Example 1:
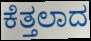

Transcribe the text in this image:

ಕೆತ್ತಲಾದ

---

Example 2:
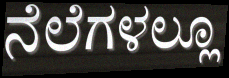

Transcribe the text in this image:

ನೆಲೆಗಳಲ್ಲೂ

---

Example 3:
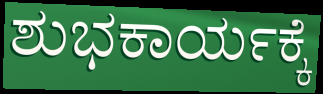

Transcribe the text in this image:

ಶುಭಕಾರ್ಯಕ್ಕೆ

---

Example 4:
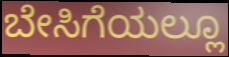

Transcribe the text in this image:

ಬೇಸಿಗೆಯಲ್ಲೂ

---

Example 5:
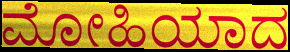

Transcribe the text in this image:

ಮೋಹಿಯಾದ